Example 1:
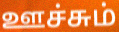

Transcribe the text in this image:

ஊச்சும்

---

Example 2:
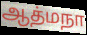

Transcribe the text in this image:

ஆத்மநா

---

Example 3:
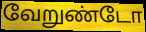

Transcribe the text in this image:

வேறுண்டோ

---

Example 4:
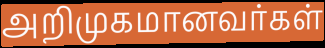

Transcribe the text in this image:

அறிமுகமானவர்கள்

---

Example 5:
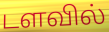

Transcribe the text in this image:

டளவில்